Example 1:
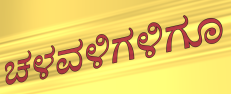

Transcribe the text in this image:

ಚಳವಳಿಗಳಿಗೂ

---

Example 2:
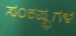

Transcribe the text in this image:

ಸಂಕಷ್ಟಗಳ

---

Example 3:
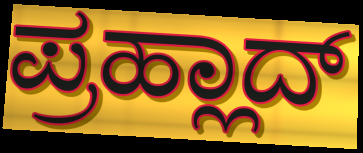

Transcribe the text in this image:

ಪ್ರಹ್ಲಾದ್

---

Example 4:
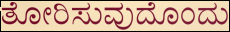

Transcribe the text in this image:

ತೋರಿಸುವುದೊಂದು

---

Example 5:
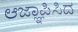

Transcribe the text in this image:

ಆಜ್ಞಾಪಿಸಿದ